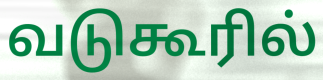
வடுகூரில்